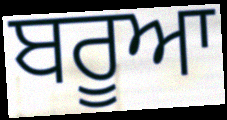
ਬਰੂਆ